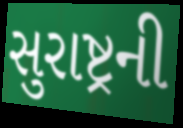
સુરાષ્ટ્રની